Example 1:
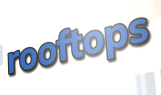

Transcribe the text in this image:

rooftops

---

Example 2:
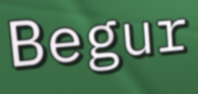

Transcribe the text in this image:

Begur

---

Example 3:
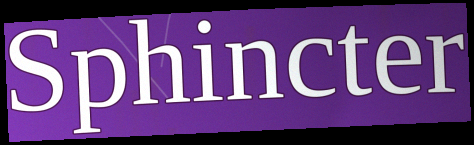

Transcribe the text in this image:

Sphincter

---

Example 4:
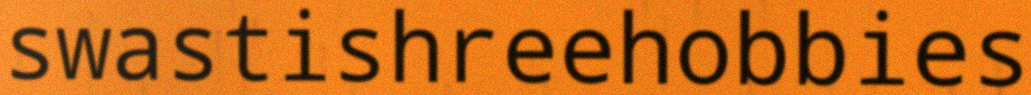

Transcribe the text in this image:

swastishreehobbies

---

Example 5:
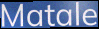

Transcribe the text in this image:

Matale